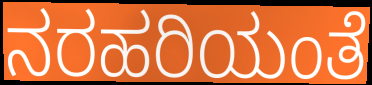
ನರಹರಿಯಂತೆ